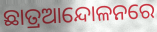
ଛାତ୍ରଆନ୍ଦୋଳନରେ